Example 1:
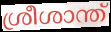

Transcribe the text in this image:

ശ്രീശാന്ത്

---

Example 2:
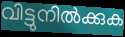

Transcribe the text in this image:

വിട്ടുനിൽക്കുക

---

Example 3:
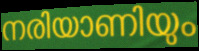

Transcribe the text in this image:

നരിയാണിയും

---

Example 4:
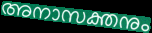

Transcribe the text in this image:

അനാസക്തനും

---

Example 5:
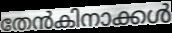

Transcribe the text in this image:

തേൻകിനാക്കൾ